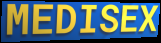
MEDISEX